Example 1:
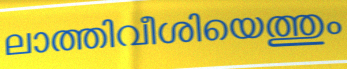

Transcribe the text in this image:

ലാത്തിവീശിയെത്തും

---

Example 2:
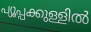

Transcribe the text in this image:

പ്യൂപ്പക്കുള്ളിൽ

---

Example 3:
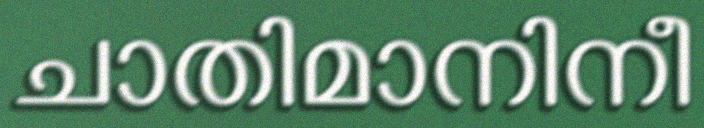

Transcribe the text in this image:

ചാതിമാനിനീ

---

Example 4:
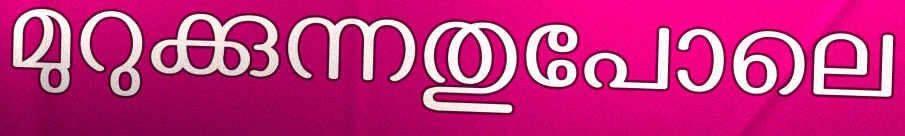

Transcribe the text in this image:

മുറുക്കുന്നതുപോലെ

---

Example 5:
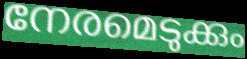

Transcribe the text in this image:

നേരമെടുക്കും